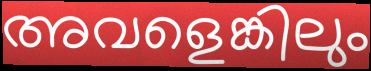
അവളെങ്കിലും